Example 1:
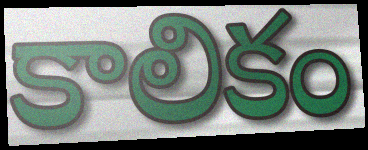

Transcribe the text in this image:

కాలికం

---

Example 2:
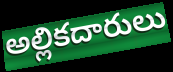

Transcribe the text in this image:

అల్లికదారులు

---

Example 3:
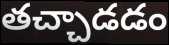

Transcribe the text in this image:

తచ్చాడడం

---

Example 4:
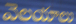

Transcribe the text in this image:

వెలయాలు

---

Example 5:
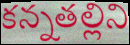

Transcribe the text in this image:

కన్నతల్లిని